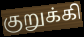
குறுக்கி